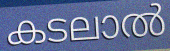
കടലാൽ